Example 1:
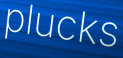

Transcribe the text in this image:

plucks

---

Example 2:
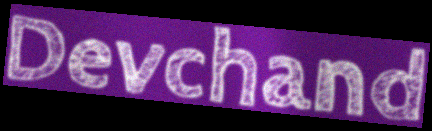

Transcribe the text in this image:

Devchand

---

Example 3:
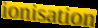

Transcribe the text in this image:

ionisation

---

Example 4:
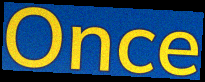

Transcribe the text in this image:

Once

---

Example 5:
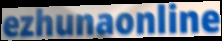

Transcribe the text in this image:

ezhunaonline